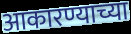
आकारण्याच्या